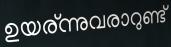
ഉയര്ന്നുവരാറുണ്ട്